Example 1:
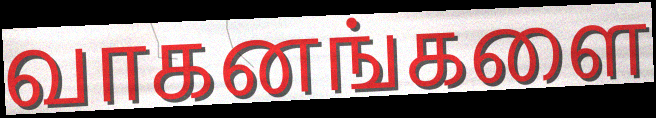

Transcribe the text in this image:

வாகனங்களை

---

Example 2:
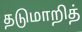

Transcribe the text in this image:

தடுமாறித்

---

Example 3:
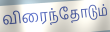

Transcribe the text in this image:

விரைந்தோடும்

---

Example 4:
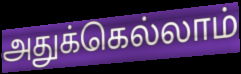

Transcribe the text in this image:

அதுக்கெல்லாம்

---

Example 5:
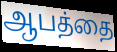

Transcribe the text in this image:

ஆபத்தை